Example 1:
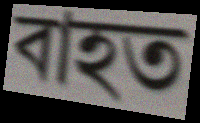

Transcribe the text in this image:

বাহত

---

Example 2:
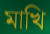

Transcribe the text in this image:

মাখি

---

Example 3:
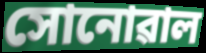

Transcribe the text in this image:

সোনোৱাল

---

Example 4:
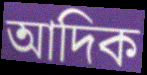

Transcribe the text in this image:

আদিক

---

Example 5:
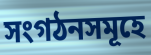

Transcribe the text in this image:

সংগঠনসমূহে